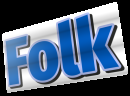
Folk